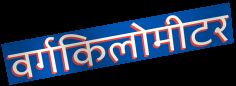
वर्गकिलोमीटर